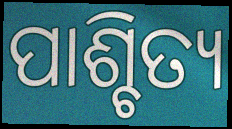
ପାଶ୍ଚିତ୍ୟ